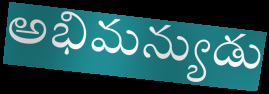
అభిమన్యుడు